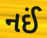
નઈં